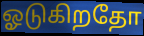
ஓடுகிறதோ